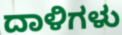
ದಾಳಿಗಳು